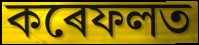
কৰেফলত